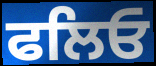
ਫਲਿਓ